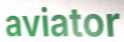
aviator